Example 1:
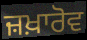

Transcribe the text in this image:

ਜ਼ਖ਼ਾਰੋਵ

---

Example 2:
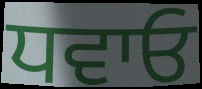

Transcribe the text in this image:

ਧਵਾਓ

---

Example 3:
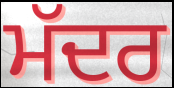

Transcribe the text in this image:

ਮੱਦਰ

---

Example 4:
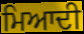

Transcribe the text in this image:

ਮਿਆਦੀ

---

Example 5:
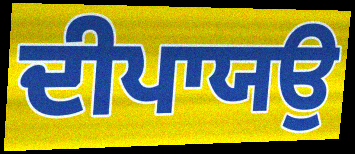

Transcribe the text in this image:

ਦੀਪਾਯਉ